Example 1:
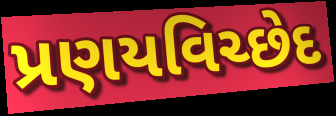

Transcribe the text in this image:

પ્રણયવિચ્છેદ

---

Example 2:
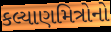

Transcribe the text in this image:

કલ્યાણમિત્રોનો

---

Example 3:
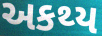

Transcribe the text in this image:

અકથ્ય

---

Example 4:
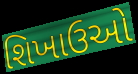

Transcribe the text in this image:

શિખાઉઓ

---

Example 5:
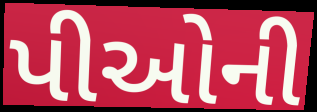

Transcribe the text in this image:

પીઓની